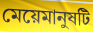
মেয়েমানুষটি